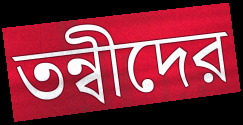
তন্বীদের